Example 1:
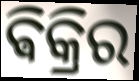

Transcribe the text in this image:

ଵିକ୍ରିର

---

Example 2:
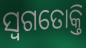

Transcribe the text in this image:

ସ୍ୱଗତୋକ୍ତି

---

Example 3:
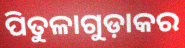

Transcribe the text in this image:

ପିତୁଳାଗୁଡ଼ାକର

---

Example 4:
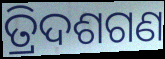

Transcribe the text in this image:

ତ୍ରିଦଶଗଣ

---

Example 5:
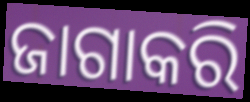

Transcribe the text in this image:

ଜାଗାକରି